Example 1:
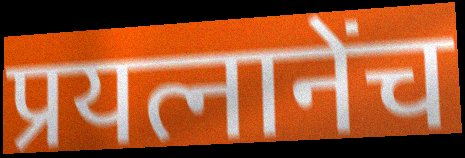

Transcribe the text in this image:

प्रयत्नानेंच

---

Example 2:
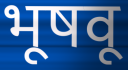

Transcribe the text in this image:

भूषवू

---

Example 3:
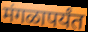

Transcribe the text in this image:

मंगळापर्यंत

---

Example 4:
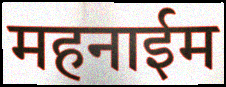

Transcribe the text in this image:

महनाईम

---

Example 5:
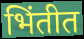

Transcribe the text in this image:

भिंतीत